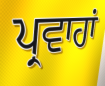
ਪ੍ਰਵਾਹਾਂ